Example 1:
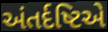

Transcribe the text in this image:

અંતર્દષ્ટિએ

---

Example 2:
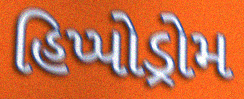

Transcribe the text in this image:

હિપ્પોડ્રોમ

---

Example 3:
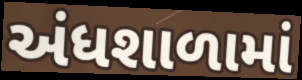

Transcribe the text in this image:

અંધશાળામાં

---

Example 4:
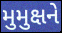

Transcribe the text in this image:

મુમુક્ષને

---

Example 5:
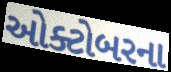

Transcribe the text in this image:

ઓક્ટોબરના